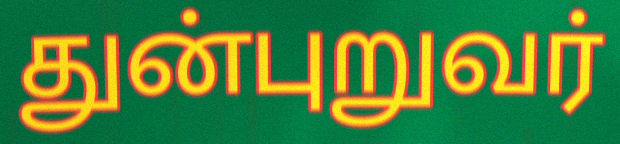
துன்புறுவர்